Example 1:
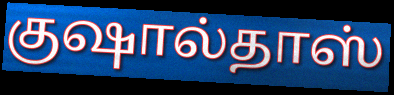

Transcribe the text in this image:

குஷால்தாஸ்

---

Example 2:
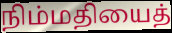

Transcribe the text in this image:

நிம்மதியைத்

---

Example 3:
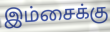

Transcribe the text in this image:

இம்சைக்கு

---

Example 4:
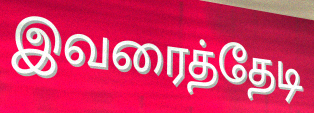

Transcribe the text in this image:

இவரைத்தேடி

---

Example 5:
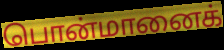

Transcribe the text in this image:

பொன்மானைக்